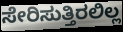
ಸೇರಿಸುತ್ತಿರಲಿಲ್ಲ